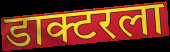
डाक्टरला